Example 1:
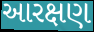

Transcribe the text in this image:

આરક્ષણ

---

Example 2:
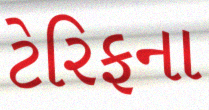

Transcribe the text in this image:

ટેરિફના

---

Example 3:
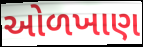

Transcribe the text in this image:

ઓળખાણ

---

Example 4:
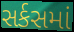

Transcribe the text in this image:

સર્કસમાં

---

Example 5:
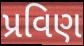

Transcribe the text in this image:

પ્રવિણ